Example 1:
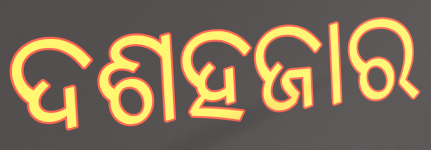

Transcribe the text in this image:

ଦଶହଜାର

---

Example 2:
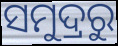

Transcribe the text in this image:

ସମୁଦ୍ରରୁ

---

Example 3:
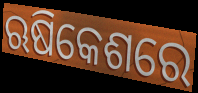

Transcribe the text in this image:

ଋଷିକେଶରେ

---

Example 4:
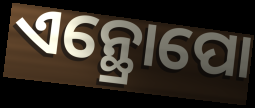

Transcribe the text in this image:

ଏନ୍ଥ୍ରୋପୋ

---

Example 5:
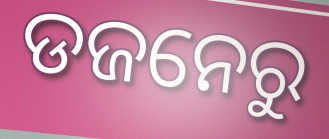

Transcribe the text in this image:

ଡଜନେରୁ